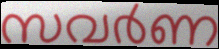
സവർണ